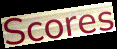
Scores